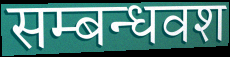
सम्बन्धवश